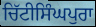
ਚਿੱਟੀਸਿੰਘਪੁਰਾ